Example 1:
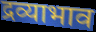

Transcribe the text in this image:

द्रव्याभाव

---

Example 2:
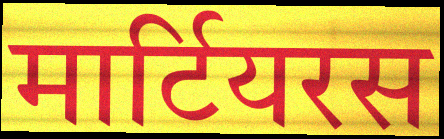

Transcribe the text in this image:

मार्टियरस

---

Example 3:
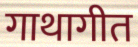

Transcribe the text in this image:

गाथागीत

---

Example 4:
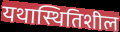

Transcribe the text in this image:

यथास्थितिशील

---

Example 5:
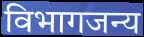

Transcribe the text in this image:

विभागजन्य